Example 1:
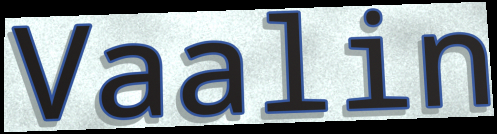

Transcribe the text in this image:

Vaalin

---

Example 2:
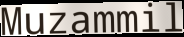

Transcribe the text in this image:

Muzammil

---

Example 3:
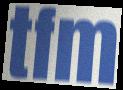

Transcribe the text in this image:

tfm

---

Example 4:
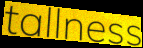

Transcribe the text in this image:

tallness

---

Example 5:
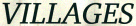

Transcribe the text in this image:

VILLAGES